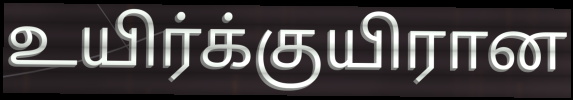
உயிர்க்குயிரான